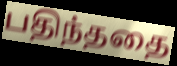
பதிந்ததை